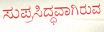
ಸುಪ್ರಸಿದ್ಧವಾಗಿರುವ